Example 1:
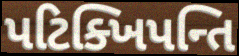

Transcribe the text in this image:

પટિક્ખિપન્તિ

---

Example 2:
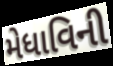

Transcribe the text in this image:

મેધાવિની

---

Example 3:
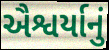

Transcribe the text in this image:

ઐશ્વર્યાનું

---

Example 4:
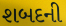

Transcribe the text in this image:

શબદની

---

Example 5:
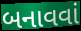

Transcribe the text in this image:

બનાવવાં